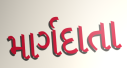
માર્ગદાતા